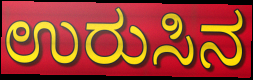
ಉರುಸಿನ